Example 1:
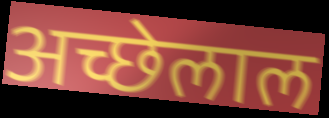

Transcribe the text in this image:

अच्छेलाल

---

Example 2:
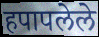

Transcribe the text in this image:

हपापलेले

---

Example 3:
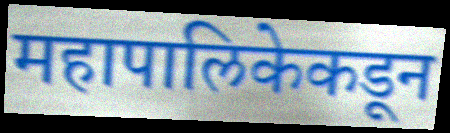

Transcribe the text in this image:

महापालिकेकडून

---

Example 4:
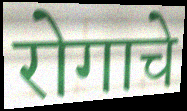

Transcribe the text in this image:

रोगाचे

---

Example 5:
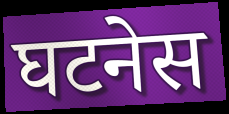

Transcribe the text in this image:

घटनेस